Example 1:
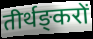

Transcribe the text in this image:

तीर्थङ्करों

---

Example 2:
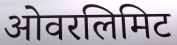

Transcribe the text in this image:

ओवरलिमिट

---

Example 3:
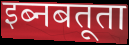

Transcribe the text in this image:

इब्नबतूता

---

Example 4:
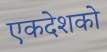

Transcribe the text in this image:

एकदेशको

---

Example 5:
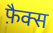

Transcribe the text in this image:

फ़ैक्स